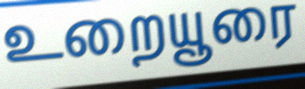
உறையூரை